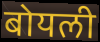
बोयली